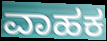
ವಾಹಕ